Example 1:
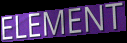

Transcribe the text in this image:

ELEMENT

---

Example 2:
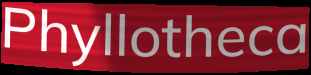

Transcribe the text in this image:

Phyllotheca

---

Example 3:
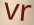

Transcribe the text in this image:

vr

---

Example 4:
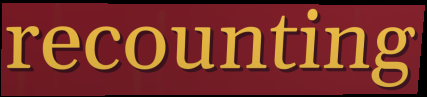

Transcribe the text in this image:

recounting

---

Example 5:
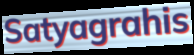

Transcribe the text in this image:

Satyagrahis